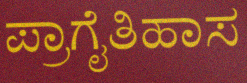
ಪ್ರಾಗೈತಿಹಾಸ